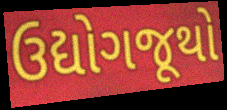
ઉદ્યોગજૂથો